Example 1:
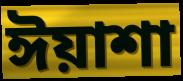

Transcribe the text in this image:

ঈয়াশা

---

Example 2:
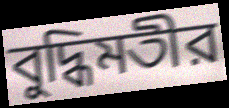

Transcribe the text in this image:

বুদ্ধিমতীর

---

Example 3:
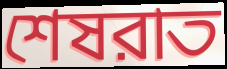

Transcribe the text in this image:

শেষরাত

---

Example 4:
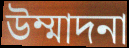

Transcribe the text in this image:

উম্মাদনা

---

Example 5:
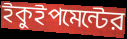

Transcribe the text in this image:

ইকুইপমেন্টের